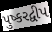
પુષ્કરદ્વીપ